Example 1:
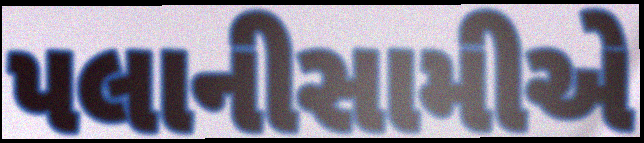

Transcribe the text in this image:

પલાનીસામીએ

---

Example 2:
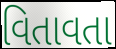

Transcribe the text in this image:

વિતાવતા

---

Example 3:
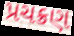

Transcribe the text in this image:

પ્રચક્રણ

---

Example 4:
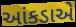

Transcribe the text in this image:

આંકડાએ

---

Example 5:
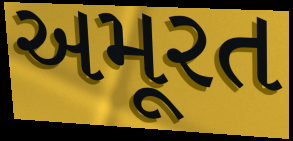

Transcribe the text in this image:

અમૂરત